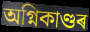
অগ্নিকাণ্ডৰ